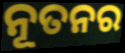
ନୂତନର